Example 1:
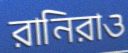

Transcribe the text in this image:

রানিরাও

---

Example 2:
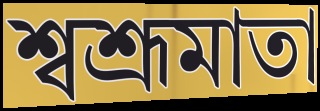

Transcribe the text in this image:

শ্বশ্রূমাতা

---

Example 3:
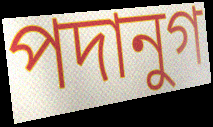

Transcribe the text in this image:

পদানুগ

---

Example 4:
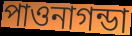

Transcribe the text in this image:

পাওনাগন্ডা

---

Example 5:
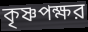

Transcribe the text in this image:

কৃষ্ণপক্ষর